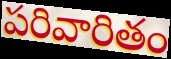
పరివారితం